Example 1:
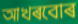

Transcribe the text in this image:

আখৰবোৰ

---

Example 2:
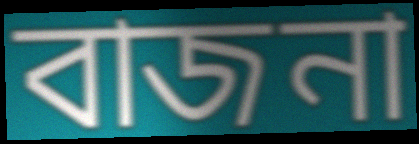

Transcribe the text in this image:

বাজনা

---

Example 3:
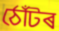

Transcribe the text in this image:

ঠোঁটৰ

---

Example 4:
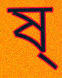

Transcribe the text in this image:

ষ্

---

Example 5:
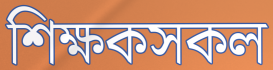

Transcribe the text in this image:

শিক্ষকসকল